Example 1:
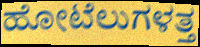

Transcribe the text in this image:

ಹೋಟೆಲುಗಳತ್ತ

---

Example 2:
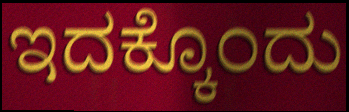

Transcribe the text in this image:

ಇದಕ್ಕೊಂದು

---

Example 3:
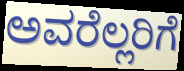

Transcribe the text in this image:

ಅವರೆಲ್ಲರಿಗೆ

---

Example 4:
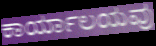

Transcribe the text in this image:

ಕಾರ್ಯಾಲಯವು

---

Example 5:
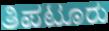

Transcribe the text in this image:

ತಿಪಟೂರು